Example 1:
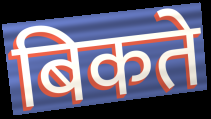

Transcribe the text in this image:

बिकते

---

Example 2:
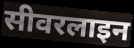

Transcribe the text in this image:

सीवरलाइन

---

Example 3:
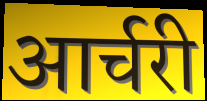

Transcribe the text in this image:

आर्चरी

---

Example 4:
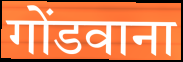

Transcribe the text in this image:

गोंडवाना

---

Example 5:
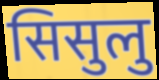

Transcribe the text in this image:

सिसुलु